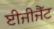
ਈਜੀਜੈੱਟ